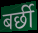
बर्छी